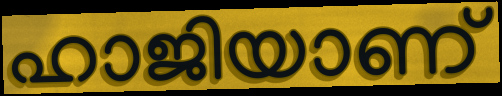
ഹാജിയാണ്